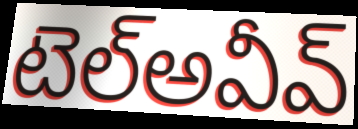
టెల్అవీవ్